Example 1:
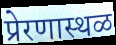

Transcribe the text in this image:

प्रेरणास्थळ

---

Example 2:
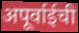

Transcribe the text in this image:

अपूर्वाईची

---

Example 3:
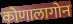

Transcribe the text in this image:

कोणालागोन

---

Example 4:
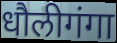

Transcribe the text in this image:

धौलीगंगा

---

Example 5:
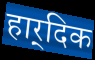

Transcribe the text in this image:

हार्दिक